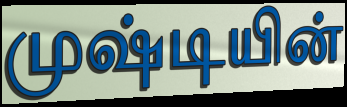
முஷ்டியின்